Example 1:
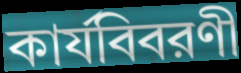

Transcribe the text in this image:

কার্যবিবরণী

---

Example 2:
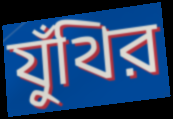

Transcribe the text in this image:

যুঁথির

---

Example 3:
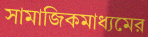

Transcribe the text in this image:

সামাজিকমাধ্যমের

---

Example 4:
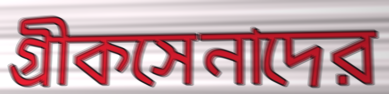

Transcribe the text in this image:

গ্রীকসেনাদের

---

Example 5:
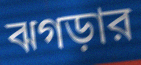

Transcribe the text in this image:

ঝগড়ার